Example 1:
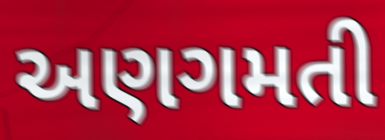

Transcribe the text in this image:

અણગમતી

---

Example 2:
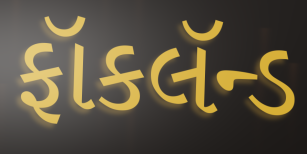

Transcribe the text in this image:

ફૉકલૅન્ડ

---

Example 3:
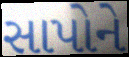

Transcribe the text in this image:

સાપોને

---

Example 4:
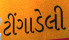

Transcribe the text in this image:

ટીંગાડેલી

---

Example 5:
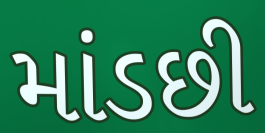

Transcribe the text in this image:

માંડછી